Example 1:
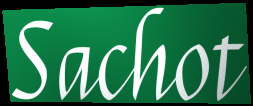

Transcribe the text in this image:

Sachot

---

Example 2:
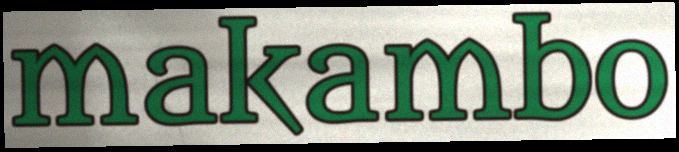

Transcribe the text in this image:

makambo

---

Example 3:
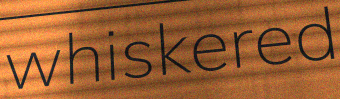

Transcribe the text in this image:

whiskered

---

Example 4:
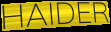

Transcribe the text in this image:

HAIDER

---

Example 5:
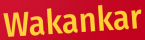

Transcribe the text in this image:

Wakankar